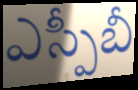
ఎస్పీబీ